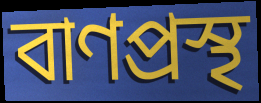
বাণপ্রস্থ